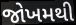
જોખમથી